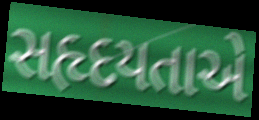
સહૃદયતાએ